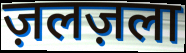
ज़लज़ला